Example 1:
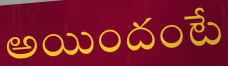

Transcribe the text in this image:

అయిందంటే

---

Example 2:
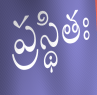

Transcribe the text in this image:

ప్రస్థితః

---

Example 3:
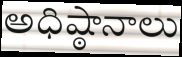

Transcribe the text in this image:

అధిష్ఠానాలు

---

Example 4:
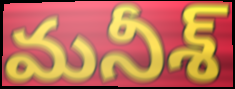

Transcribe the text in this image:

మనీశ్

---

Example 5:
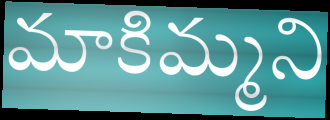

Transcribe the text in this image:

మాకిమ్మని